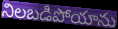
నిలబడిపోయాను